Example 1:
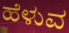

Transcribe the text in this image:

ಹೆಳುವ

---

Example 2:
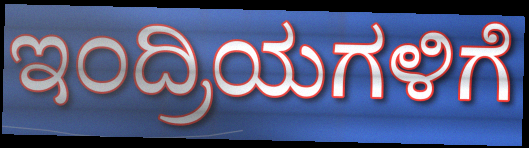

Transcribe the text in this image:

ಇಂದ್ರಿಯಗಳಿಗೆ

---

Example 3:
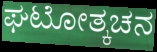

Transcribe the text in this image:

ಘಟೋತ್ಕಚನ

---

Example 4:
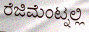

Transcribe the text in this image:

ರೆಜಿಮೆಂಟ್ನಲ್ಲಿ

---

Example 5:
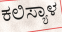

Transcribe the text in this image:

ಕಲಿಸ್ಯಾಳ